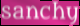
sanchy